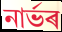
নাৰ্ভৰ